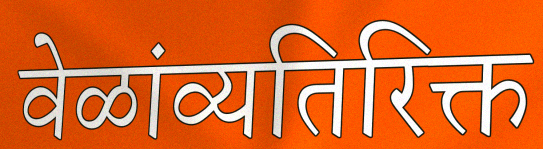
वेळांव्यतिरिक्त